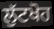
ਲੁੱਟਖੋਹ